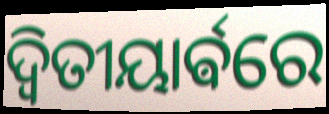
ଦ୍ଵିତୀୟାର୍ଵରେ